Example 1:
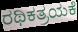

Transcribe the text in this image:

ರಥಿಕತ್ರಯಕೆ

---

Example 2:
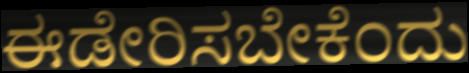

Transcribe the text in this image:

ಈಡೇರಿಸಬೇಕೆಂದು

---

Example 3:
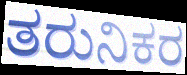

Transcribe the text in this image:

ತರುನಿಕರ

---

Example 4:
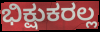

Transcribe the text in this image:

ಭಿಕ್ಷುಕರಲ್ಲ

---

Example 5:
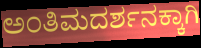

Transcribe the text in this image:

ಅಂತಿಮದರ್ಶನಕ್ಕಾಗಿ